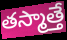
తస్మాత్తే